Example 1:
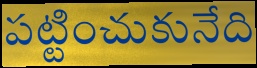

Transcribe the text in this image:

పట్టించుకునేది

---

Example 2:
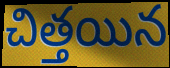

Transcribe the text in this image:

చిత్తయిన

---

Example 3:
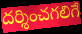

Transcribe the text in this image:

దర్శించగలిగే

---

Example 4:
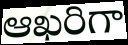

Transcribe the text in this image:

ఆఖరిగా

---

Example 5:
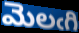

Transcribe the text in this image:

మెలఁగి